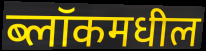
ब्लॉकमधील